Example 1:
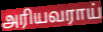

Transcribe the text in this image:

அரியவராய்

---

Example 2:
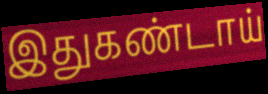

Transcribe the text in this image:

இதுகண்டாய்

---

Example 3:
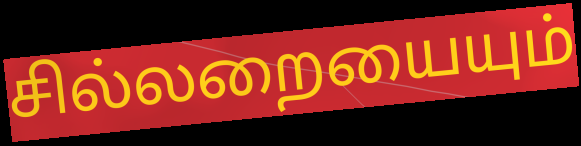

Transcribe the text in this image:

சில்லறையையும்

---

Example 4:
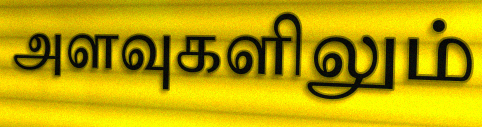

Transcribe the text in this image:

அளவுகளிலும்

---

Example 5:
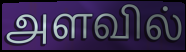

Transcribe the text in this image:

அளவில்